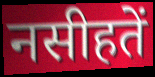
नसीहतें